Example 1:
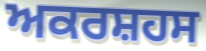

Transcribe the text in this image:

ਅਕਰਸ਼ਹਸ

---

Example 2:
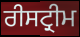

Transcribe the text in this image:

ਰੀਸਟ੍ਰੀਮ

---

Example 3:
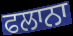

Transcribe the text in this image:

ਫਲਾਨਾ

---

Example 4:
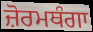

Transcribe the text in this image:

ਜ਼ੋਰਮਥੰਗਾ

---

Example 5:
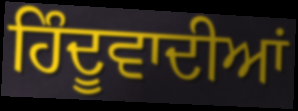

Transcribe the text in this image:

ਹਿੰਦੂਵਾਦੀਆਂ